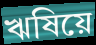
ঋষিয়ে